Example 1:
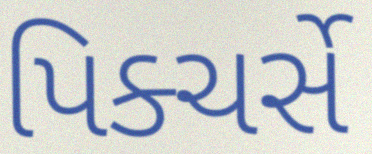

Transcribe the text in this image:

પિક્ચર્સે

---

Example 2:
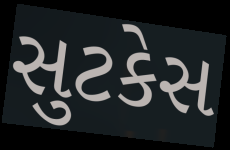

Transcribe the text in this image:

સુટકેસ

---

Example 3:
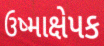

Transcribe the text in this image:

ઉષ્માક્ષેપક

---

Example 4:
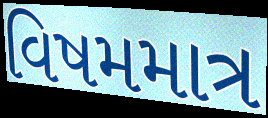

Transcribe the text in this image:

વિષમમાત્ર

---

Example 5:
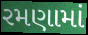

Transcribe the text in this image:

રમણામાં